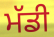
ਮੱਡੀ